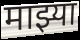
माझ्या